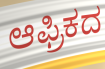
ಆಫ್ರಿಕದ